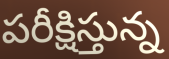
పరీక్షిస్తున్న